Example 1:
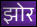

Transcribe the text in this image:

झोर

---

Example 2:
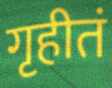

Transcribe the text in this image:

गृहीतं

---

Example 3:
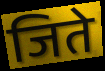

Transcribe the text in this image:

जिते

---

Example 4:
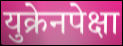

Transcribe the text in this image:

युक्रेनपेक्षा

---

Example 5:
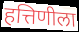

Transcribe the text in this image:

हत्तिणीला